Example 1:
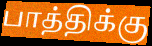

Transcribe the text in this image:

பாத்திக்கு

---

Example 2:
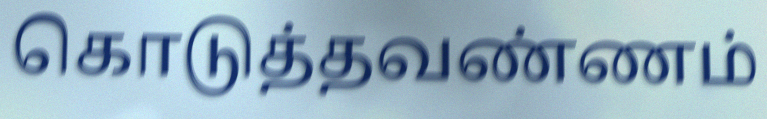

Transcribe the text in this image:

கொடுத்தவண்ணம்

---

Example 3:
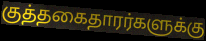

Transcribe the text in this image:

குத்தகைதாரர்களுக்கு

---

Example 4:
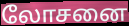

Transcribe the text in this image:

லோசனை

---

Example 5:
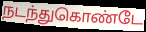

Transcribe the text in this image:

நடந்துகொண்டே